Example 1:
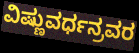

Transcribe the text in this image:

ವಿಷ್ಣುವರ್ಧನ್ರವರ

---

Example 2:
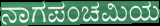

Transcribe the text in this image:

ನಾಗಪಂಚಮಿಯ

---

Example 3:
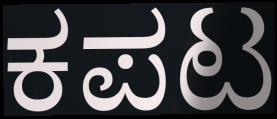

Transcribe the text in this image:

ಕಪಟ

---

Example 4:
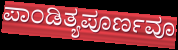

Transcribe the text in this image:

ಪಾಂಡಿತ್ಯಪೂರ್ಣವೂ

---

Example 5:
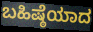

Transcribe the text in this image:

ಬಹಿಷ್ಠೆಯಾದ